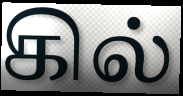
கில்